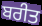
ਬਰੀਤ